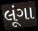
લૂંગા